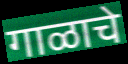
गाळाचे